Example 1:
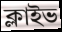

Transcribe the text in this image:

ক্লাইভ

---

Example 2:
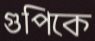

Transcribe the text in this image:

গুপিকে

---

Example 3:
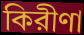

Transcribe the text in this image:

কিরীণা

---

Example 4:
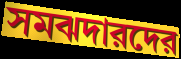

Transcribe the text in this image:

সমঝদারদের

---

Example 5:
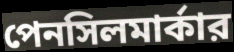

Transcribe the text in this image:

পেনসিলমার্কার